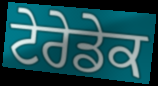
ਟੇਰੇਡੇਕ